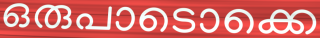
ഒരുപാടൊക്കെ